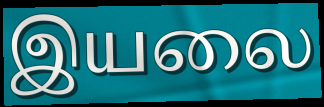
இயலை